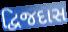
દ્વિજદાસ